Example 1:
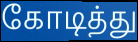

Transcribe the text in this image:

கோடித்து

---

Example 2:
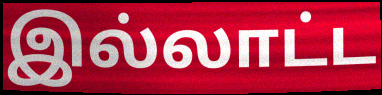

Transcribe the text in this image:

இல்லாட்ட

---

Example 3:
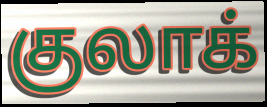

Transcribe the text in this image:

குலாக்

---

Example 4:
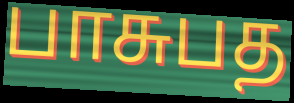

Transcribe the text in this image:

பாசுபத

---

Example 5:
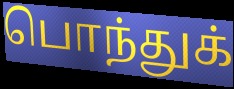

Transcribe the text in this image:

பொந்துக்